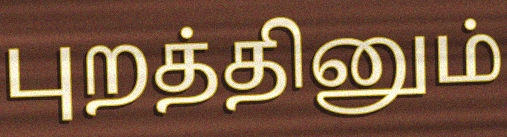
புறத்தினும்